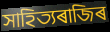
সাহিত্যৰাজিৰ